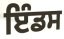
ਇੰਡਸ